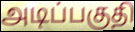
அடிப்பகுதி